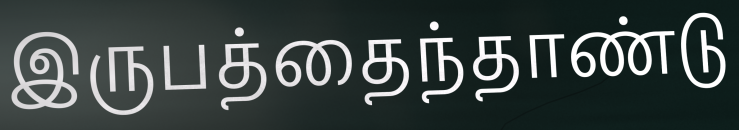
இருபத்தைந்தாண்டு